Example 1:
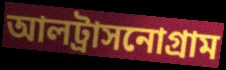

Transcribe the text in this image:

আলট্রাসনোগ্রাম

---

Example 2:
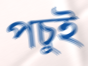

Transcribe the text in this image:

পচুই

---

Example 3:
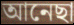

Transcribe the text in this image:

আনেছা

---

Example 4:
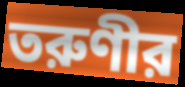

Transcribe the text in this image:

তরুণীর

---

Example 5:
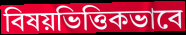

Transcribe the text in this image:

বিষয়ভিত্তিকভাবে